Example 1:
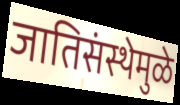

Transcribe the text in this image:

जातिसंस्थेमुळे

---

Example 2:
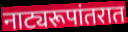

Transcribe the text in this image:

नाट्यरूपांतरात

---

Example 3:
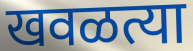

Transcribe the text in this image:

खवळत्या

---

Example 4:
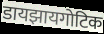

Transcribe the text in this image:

डायझायगोटिक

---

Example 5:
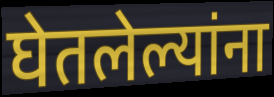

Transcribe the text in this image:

घेतलेल्यांना